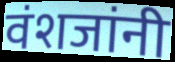
वंशजांनी